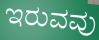
ಇರುವವು